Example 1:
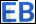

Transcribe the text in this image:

EB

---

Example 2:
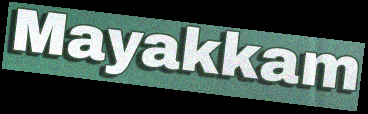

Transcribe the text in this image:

Mayakkam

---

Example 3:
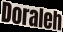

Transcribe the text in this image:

Doraleh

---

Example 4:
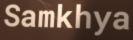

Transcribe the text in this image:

Samkhya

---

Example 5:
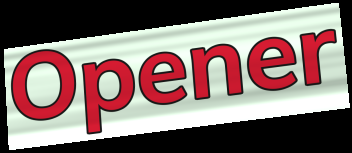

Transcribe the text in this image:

Opener